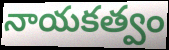
నాయకత్వం